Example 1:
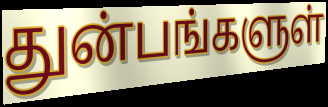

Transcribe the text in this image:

துன்பங்களுள்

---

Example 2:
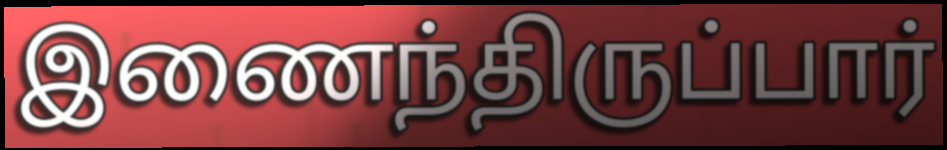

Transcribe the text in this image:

இணைந்திருப்பார்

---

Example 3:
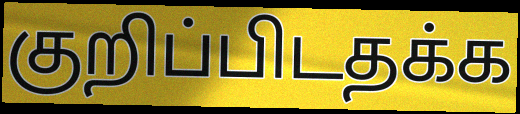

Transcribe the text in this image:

குறிப்பிடதக்க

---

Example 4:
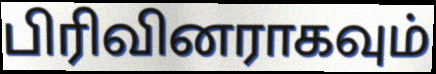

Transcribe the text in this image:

பிரிவினராகவும்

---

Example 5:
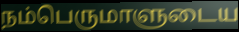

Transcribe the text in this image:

நம்பெருமாளுடைய